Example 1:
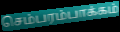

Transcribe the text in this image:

செம்பரம்பாக்கம்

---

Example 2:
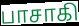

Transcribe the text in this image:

பாசாகி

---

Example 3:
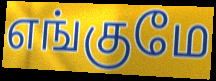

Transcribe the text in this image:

எங்குமே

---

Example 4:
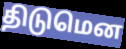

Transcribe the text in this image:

திடுமென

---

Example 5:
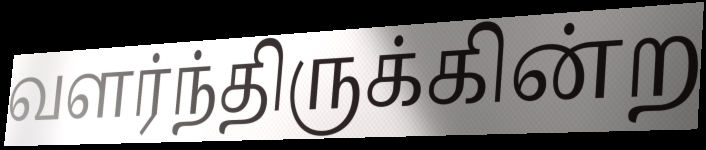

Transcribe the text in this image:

வளர்ந்திருக்கின்ற